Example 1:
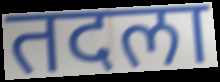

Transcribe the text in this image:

तदला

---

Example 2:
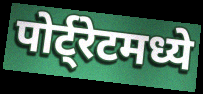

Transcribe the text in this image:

पोर्ट्रेटमध्ये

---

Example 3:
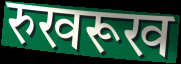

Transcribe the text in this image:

रुखरूख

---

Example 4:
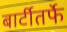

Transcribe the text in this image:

बार्टीतर्फे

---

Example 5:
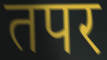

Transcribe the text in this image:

तपर